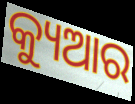
କ୍ୟୁଆର